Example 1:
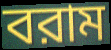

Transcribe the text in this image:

বরাম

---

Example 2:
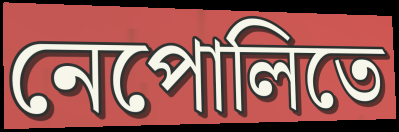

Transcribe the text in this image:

নেপোলিতে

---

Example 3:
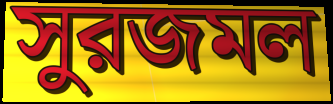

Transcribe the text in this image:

সুরজমল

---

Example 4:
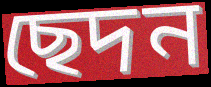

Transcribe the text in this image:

ছেদন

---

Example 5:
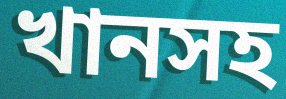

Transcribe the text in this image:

খানসহ